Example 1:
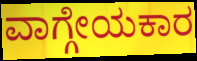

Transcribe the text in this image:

ವಾಗ್ಗೇಯಕಾರ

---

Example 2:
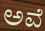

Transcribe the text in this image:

ಅವೆ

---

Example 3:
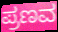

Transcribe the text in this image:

ಪ್ರಣವ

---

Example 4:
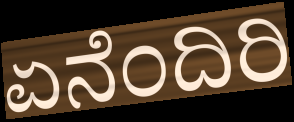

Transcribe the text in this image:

ಏನೆಂದಿರಿ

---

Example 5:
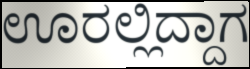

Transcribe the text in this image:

ಊರಲ್ಲಿದ್ದಾಗ